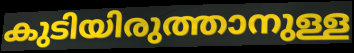
കുടിയിരുത്താനുള്ള